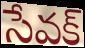
సేవక్